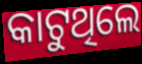
କାଟୁଥିଲେ